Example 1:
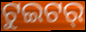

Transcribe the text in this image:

ଟୁଇଟର୍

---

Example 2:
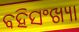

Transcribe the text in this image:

ବହିସଂଖ୍ୟା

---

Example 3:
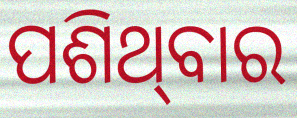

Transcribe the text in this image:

ପଶିଥ୍‌ବାର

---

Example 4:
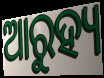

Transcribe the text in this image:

ଆରୁହ୍ୟ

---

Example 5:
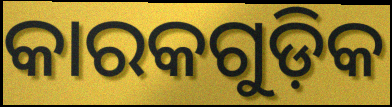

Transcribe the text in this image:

କାରକଗୁଡ଼ିକ